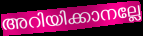
അറിയിക്കാനല്ലേ